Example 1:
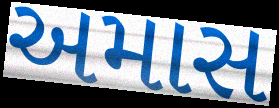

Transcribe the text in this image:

અમાસ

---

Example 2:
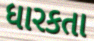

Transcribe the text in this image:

ધારકતા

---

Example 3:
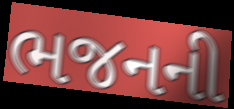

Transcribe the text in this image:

ભજનની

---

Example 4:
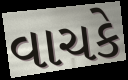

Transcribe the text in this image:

વાચકે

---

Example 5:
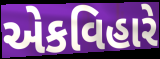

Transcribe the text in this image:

એકવિહારે